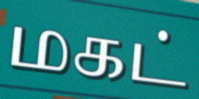
மகட்